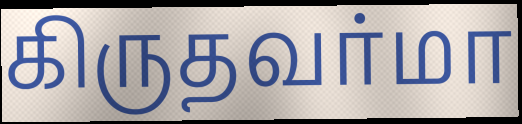
கிருதவர்மா